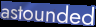
astounded